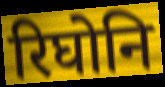
रिघोनि